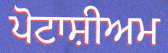
ਪੋਟਾਸ਼ੀਅਮ